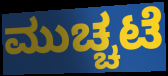
ಮುಚ್ಚಟೆ